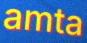
amta